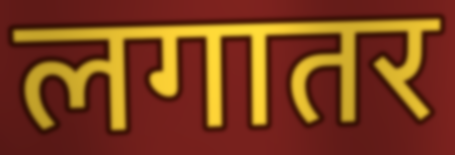
लगातर